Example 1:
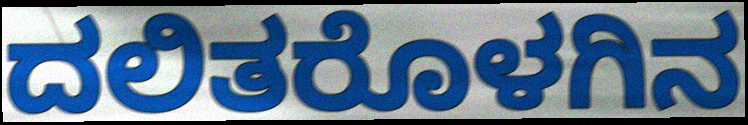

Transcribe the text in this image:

ದಲಿತರೊಳಗಿನ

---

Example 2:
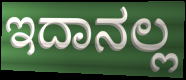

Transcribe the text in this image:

ಇದಾನಲ್ಲ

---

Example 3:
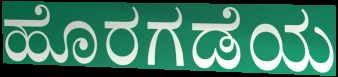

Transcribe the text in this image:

ಹೊರಗಡೆಯ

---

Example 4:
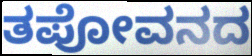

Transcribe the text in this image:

ತಪೋವನದ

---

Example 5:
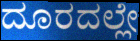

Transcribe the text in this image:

ದೂರದಲ್ಲೇ